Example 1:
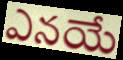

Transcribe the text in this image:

ఎనయే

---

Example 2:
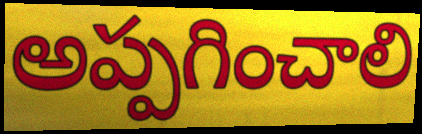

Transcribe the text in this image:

అప్పగించాలి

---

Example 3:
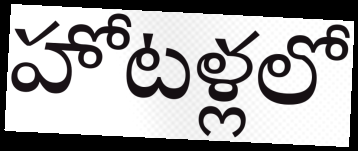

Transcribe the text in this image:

హోటళ్లలో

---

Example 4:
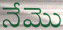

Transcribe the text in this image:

నేమొ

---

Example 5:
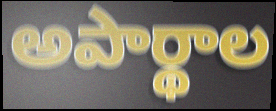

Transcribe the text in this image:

అపార్థాల